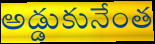
అడ్డుకునేంత